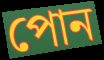
পোন